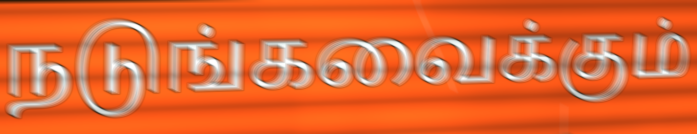
நடுங்கவைக்கும்